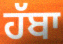
ਹੱਬਾ